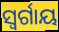
ସ୍ବର୍ଗାୟ